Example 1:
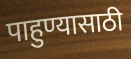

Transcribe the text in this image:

पाहुण्यासाठी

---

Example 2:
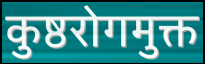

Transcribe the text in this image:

कुष्ठरोगमुक्त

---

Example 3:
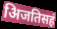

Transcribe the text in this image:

अिजतिसहं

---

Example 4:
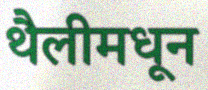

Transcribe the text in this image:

थैलीमधून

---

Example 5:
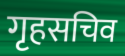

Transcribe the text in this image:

गृहसचिव